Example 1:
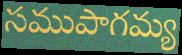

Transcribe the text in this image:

సముపాగమ్య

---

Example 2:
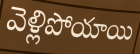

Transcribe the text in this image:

వెళ్లిపోయాయి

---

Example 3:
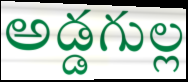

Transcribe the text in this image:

అడ్డగుల్ల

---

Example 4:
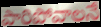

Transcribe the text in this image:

పారిపోవాలనే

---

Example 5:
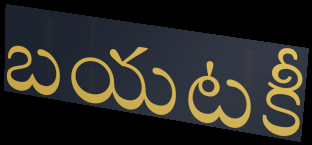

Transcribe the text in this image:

బయటకీ